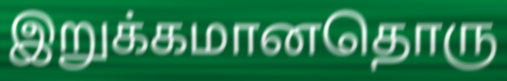
இறுக்கமானதொரு